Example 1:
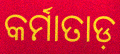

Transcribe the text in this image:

କର୍ମାତାଡ଼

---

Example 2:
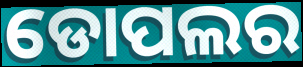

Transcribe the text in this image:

ଡୋପଲର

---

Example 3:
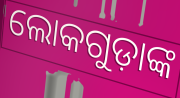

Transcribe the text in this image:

ଲୋକଗୁଡ଼ାଙ୍କ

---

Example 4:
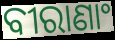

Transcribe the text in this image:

ବୀରାଣାଂ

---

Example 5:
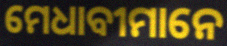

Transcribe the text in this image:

ମେଧାବୀମାନେ